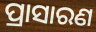
ପ୍ରାସାରଣ